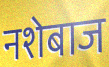
नशेबाज